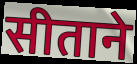
सीताने